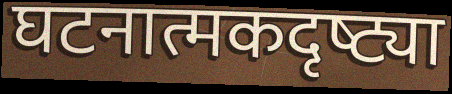
घटनात्मकदृष्ट्या